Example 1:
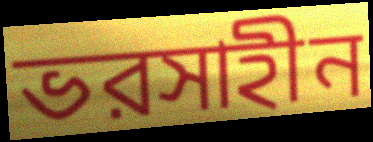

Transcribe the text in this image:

ভরসাহীন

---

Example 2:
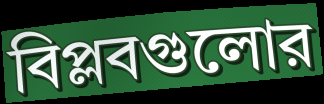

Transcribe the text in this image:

বিপ্লবগুলোর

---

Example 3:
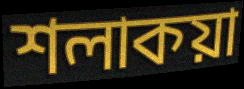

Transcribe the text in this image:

শলাকয়া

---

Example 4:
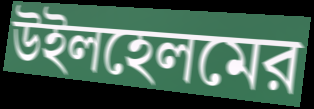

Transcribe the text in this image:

উইলহেলমের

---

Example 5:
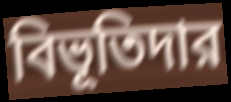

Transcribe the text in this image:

বিভূতিদার